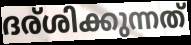
ദര്ശിക്കുന്നത്